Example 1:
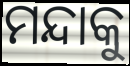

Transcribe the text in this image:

ମନ୍ଦାକୁ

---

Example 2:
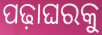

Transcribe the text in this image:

ପଢ଼ାଘରକୁ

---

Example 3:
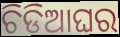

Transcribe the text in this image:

ଚିଡିଆଘର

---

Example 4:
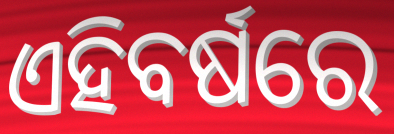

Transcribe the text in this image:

ଏହିବର୍ଷରେ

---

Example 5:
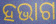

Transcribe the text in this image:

ହଭାଗ